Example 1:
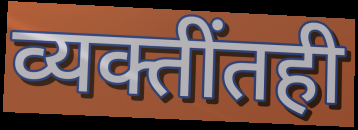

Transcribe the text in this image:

व्यक्तींतही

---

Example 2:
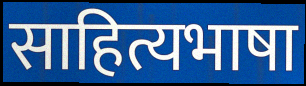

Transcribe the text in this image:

साहित्यभाषा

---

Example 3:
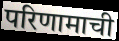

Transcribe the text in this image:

परिणामाची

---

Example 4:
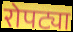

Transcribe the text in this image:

रोपट्या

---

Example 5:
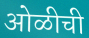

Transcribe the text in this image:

ओळीची